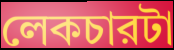
লেকচারটা